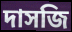
দাসজি